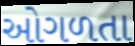
ઓગળતા